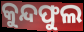
କୁନ୍ଦଫୁଲ